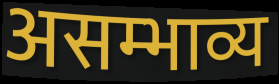
असम्भाव्य